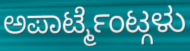
ಅಪಾರ್ಟ್ಮೆಂಟ್ಗಳು